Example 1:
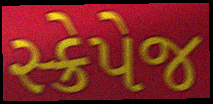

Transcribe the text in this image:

સ્ક્રેપેજ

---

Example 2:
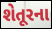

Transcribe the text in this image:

શેતૂરના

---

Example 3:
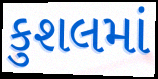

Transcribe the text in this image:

કુશલમાં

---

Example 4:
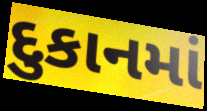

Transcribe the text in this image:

દુકાનમાં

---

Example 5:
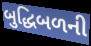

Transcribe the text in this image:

બુદ્ધિબળની